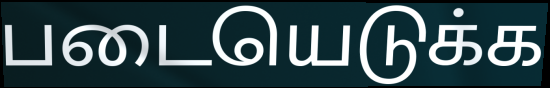
படையெடுக்க